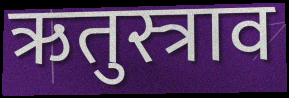
ऋतुस्त्राव